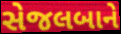
સેજલબાને